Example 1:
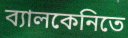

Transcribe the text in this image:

ব্যালকেনিতে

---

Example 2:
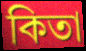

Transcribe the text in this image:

কিতা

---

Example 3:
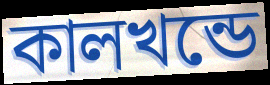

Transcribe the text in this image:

কালখন্ডে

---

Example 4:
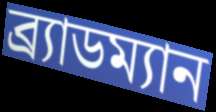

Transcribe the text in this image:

ব্র্যাডম্যান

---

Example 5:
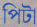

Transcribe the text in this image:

পিটা